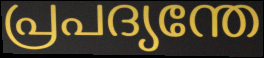
പ്രപദ്യന്തേ